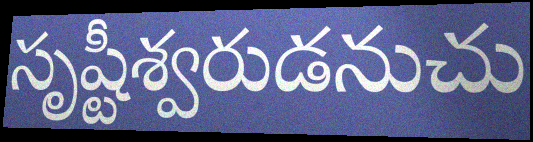
సృష్టీశ్వరుడనుచు